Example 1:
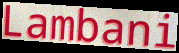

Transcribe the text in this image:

Lambani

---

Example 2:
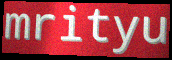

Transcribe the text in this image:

mrityu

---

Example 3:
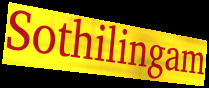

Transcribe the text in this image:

Sothilingam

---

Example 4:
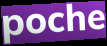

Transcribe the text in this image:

poche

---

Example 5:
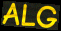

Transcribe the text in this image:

ALG